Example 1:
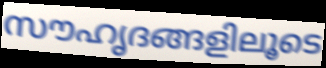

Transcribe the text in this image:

സൗഹൃദങ്ങളിലൂടെ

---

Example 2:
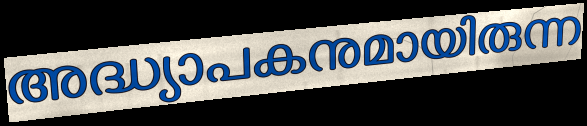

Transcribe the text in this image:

അദ്ധ്യാപകനുമായിരുന്ന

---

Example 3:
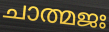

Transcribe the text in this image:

ചാത്മജഃ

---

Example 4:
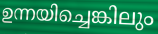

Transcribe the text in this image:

ഉന്നയിച്ചെങ്കിലും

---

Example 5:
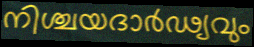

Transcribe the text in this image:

നിശ്ചയദാർഢ്യവും